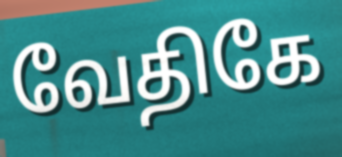
வேதிகே